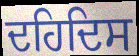
ਦਹਿਦਿਸ